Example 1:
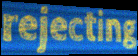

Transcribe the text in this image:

rejecting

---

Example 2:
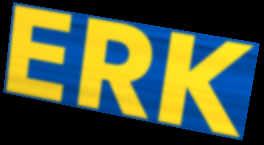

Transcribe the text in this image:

ERK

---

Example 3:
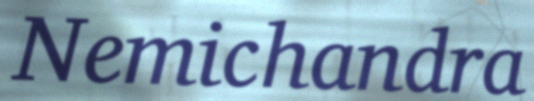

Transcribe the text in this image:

Nemichandra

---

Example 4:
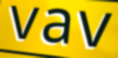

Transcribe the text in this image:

vav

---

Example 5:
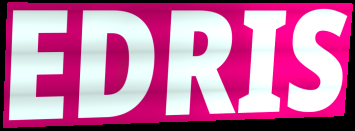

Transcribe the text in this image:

EDRIS